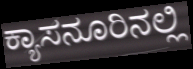
ಕ್ಯಾಸನೂರಿನಲ್ಲಿ